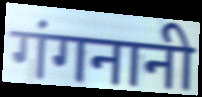
गंगनानी